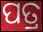
ପତ୍ର